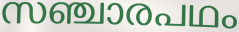
സഞ്ചാരപഥം